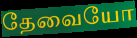
தேவையோ